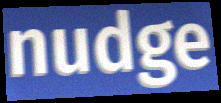
nudge